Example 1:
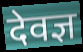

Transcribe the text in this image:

देवज्ञ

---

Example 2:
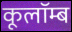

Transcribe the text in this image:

कूलॉम्ब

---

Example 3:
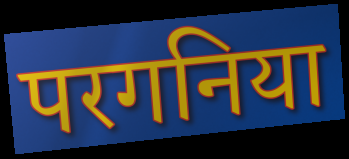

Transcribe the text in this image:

परगनिया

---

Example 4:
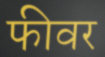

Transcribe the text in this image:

फीवर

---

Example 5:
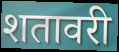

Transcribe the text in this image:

शतावरी